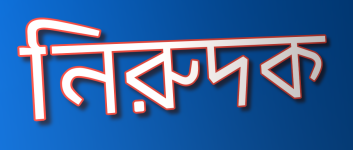
নিরুদক